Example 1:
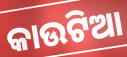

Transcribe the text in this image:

କାଉଟିଆ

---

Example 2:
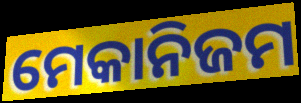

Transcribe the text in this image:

ମେକାନିଜମ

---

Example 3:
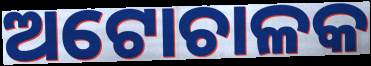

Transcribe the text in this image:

ଅଟୋଚାଳକ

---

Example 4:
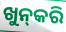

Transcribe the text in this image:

ଖୁନ୍‍କରି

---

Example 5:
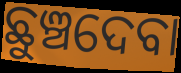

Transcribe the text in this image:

ଛୁଞ୍ଚଦେବା